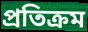
প্ৰতিক্ৰম